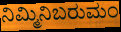
ನಿಮ್ಮಿನಿಬರುಮಂ